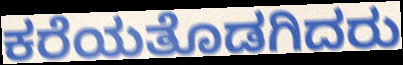
ಕರೆಯತೊಡಗಿದರು